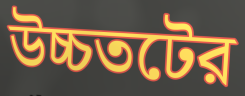
উচ্চতটের